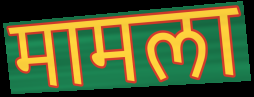
मामला